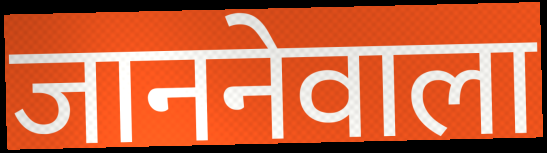
जाननेवाला